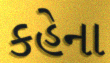
કહેના